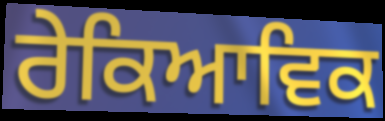
ਰੇਕਿਆਵਿਕ